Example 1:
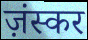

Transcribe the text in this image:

ज़ंस्कर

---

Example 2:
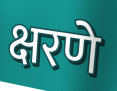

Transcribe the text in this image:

क्षरणे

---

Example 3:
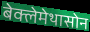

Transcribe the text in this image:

बेक्लेमेथासोन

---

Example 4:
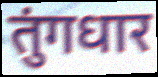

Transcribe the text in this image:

तुंगधार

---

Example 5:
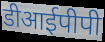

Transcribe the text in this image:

डीआईपीपी